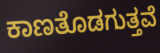
ಕಾಣತೊಡಗುತ್ತವೆ